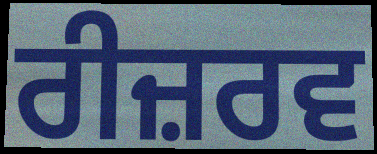
ਰੀਜ਼ਰਵ